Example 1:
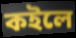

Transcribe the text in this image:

কইলে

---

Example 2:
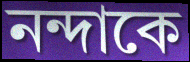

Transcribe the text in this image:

নন্দাকে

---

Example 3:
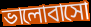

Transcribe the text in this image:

ভালোবাসো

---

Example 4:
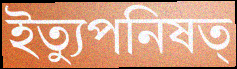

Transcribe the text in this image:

ইত্যুপনিষত্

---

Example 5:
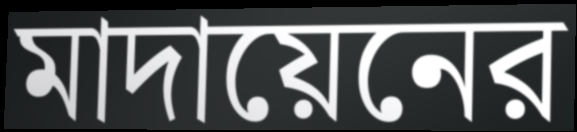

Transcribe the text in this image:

মাদায়েনের